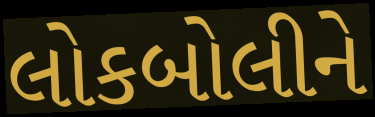
લોકબોલીને